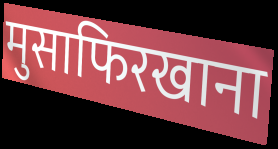
मुसाफिरखाना